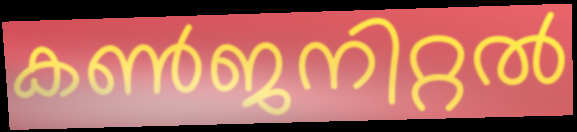
കൺജനിറ്റൽ